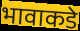
भावाकडे